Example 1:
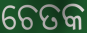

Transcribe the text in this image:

ଚେତକ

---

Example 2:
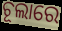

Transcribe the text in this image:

ଚୂଲାରେ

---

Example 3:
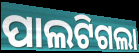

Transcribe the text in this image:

ପାଲଟିଗଲା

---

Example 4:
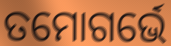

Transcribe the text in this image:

ତମୋଗର୍ଭେ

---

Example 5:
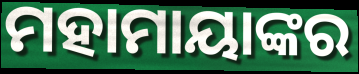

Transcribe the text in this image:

ମହାମାୟାଙ୍କର